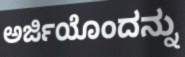
ಅರ್ಜಿಯೊಂದನ್ನು